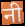
नी